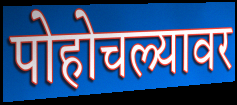
पोहोचल्यावर